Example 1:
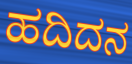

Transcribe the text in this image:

ಹದಿದನ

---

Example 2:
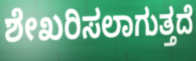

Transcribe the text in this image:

ಶೇಖರಿಸಲಾಗುತ್ತದೆ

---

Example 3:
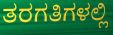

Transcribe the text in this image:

ತರಗತಿಗಳಲ್ಲಿ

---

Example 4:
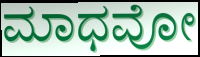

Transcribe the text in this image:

ಮಾಧವೋ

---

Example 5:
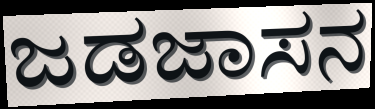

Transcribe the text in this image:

ಜಡಜಾಸನ